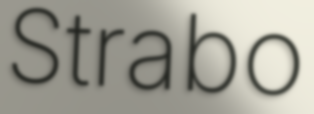
Strabo